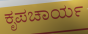
ಕೃಪಚಾರ್ಯ